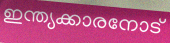
ഇന്ത്യക്കാരനോട്